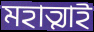
মহাত্মাই